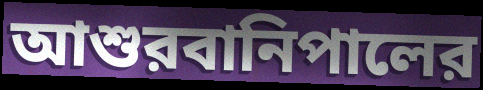
আশুরবানিপালের